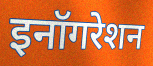
इनॉगरेशन